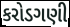
કરોડગણી